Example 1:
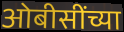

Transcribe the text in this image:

ओबीसींच्या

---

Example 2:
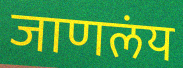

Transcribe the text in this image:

जाणलंय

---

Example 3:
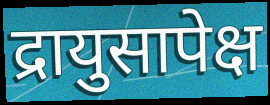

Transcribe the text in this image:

द्रायुसापेक्ष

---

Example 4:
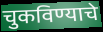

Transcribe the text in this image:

चुकविण्याचे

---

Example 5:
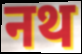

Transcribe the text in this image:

नथ